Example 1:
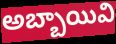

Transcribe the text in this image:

అబ్బాయివి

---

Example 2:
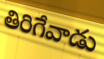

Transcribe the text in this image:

తిరిగేవాడు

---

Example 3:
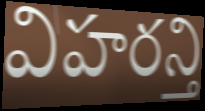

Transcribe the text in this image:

విహరన్తి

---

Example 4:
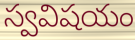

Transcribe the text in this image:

స్వవిషయం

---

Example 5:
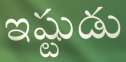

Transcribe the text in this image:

ఇష్టుడు